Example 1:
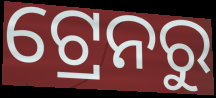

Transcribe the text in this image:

ଟ୍ରେନରୁ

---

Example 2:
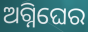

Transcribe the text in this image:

ଅଗ୍ନିଘେର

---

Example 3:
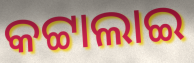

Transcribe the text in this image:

କଟ୍ଟାଲାଇ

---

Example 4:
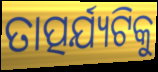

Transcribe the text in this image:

ତାତ୍ପର୍ଯ୍ୟଟିକୁ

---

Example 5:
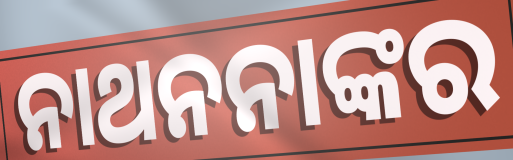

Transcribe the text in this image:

ନାଥନନାଙ୍କର